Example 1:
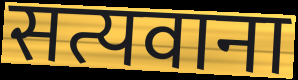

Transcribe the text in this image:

सत्यवाना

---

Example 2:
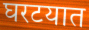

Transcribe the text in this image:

घरटयात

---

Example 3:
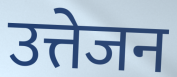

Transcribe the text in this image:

उत्तेजन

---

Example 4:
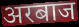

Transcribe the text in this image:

अरबाज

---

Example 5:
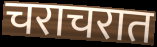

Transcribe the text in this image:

चराचरात